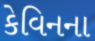
કેવિનના